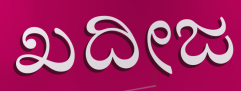
ಖದೀಜ